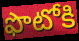
ఫొటోకి